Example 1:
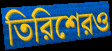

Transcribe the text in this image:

তিরিশেরও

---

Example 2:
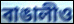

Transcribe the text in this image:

বাঙালীও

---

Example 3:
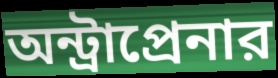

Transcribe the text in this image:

অন্ট্রাপ্রেনার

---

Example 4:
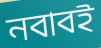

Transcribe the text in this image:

নবাবই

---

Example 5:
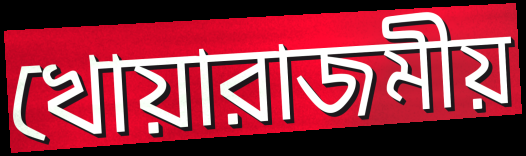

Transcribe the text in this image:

খোয়ারাজমীয়